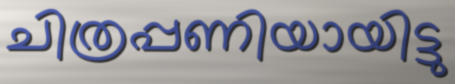
ചിത്രപ്പണിയായിട്ടു